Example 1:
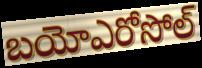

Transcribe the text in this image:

బయోఎరోసోల్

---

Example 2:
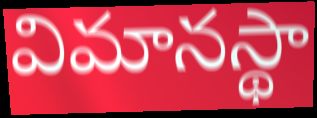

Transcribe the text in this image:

విమానస్థా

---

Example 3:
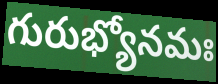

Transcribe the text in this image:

గురుభ్యోనమః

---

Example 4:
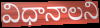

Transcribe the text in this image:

విధానాలని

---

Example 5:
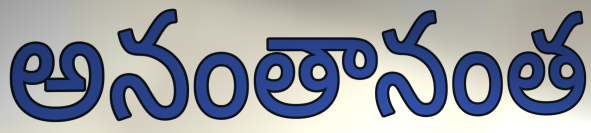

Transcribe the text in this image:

అనంతానంత